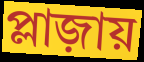
প্লাজ়ায়